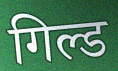
गिल्ड